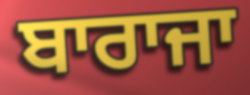
ਬਾਰਾਜਾ